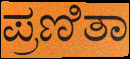
ಪ್ರಣಿತಾ